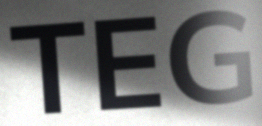
TEG